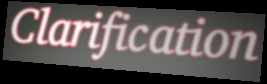
Clarification